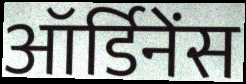
ऑर्डिनेंस